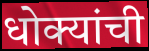
धोक्यांची